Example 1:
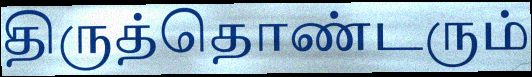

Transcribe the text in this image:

திருத்தொண்டரும்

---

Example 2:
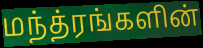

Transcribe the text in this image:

மந்த்ரங்களின்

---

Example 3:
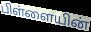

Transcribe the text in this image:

பிள்ளையின்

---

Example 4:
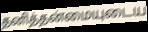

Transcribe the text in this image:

தனித்தன்மையுடைய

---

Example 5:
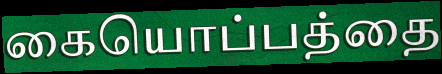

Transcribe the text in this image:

கையொப்பத்தை